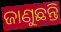
ଜାଣୁଛନ୍ତି